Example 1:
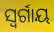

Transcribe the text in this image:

ସ୍ବର୍ଗାୟ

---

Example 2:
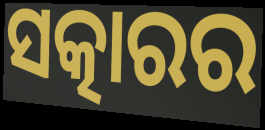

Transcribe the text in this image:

ସତ୍କାରର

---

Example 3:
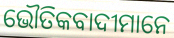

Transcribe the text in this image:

ଭୌତିକବାଦୀମାନେ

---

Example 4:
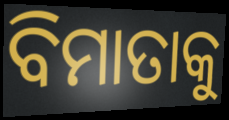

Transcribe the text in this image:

ବିମାତାକୁ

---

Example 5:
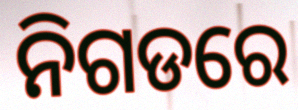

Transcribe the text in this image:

ନିଗଡରେ